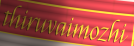
thiruvaimozhi